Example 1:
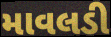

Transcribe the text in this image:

માવલડી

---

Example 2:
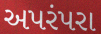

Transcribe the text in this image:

અપરંપરા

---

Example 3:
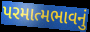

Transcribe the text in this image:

પરમાત્મભાવનું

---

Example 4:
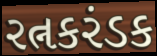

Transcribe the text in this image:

રત્નકરંડક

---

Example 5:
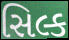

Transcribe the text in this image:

સિલ્ક